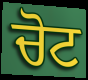
ਚੋਟ